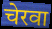
चेरवा